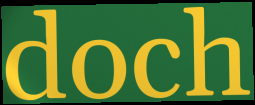
doch